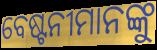
ବେଷ୍ଟନୀମାନଙ୍କୁ